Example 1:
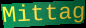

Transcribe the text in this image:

Mittag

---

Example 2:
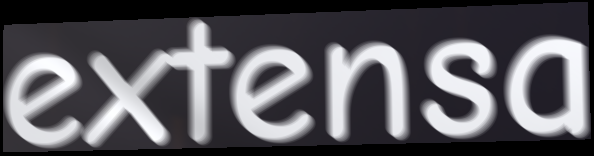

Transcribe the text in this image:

extensa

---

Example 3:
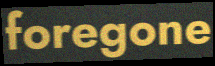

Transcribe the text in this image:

foregone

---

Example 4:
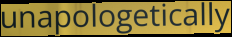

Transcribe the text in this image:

unapologetically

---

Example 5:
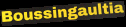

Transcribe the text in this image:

Boussingaultia